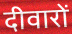
दीवारों